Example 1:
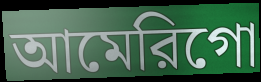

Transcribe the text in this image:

আমেরিগো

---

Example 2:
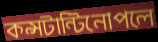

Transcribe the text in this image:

কন্সটান্টিনোপলে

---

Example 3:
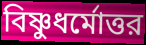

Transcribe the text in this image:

বিষ্ণুধর্মোত্তর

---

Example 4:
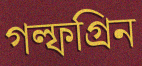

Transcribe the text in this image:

গল্ফগ্রিন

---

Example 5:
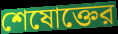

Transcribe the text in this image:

শেষোক্তের